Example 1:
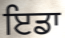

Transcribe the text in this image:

ਇਡਾ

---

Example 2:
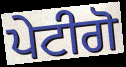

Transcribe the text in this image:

ਪੇਟੀਗੋ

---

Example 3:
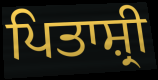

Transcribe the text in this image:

ਪਿਤਾਸ਼੍ਰੀ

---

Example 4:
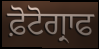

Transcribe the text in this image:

ਫ਼ੋਟੋਗ੍ਰਾਫ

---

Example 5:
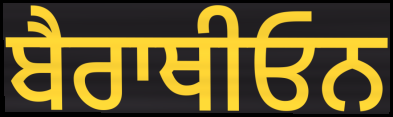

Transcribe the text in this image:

ਬੈਰਾਥੀਓਨ